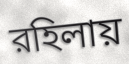
রহিলায়